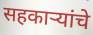
सहकार्‍यांचे